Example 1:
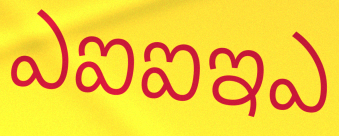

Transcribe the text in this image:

ఎఐఐఇఎ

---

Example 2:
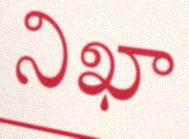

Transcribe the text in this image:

నిఖా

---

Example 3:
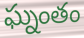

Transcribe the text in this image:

ఘ్నంతం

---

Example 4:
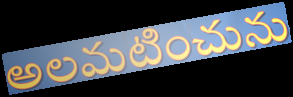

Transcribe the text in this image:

అలమటించును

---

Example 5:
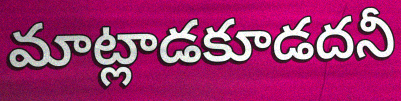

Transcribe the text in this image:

మాట్లాడకూడదనీ